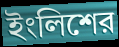
ইংলিশের